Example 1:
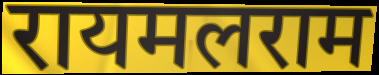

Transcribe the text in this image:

रायमलराम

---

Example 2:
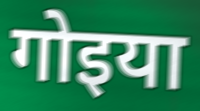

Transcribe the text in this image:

गोइया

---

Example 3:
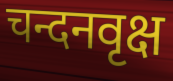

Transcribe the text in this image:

चन्दनवृक्ष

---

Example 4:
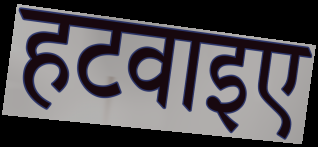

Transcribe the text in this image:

हटवाइए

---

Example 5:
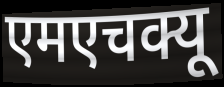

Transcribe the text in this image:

एमएचक्यू